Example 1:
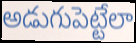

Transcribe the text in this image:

అడుగుపెట్టేలా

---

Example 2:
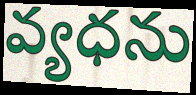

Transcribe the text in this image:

వ్యధను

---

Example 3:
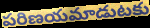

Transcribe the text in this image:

పరిణయమాడుటకు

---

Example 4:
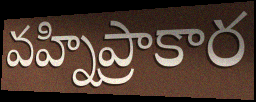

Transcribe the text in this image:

వహ్నిప్రాకార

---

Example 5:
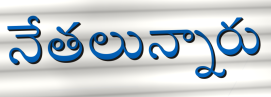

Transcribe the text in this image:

నేతలున్నారు